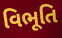
વિભૂતિ